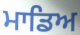
ਮਾਡਿਅ